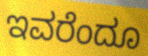
ಇವರೆಂದೂ